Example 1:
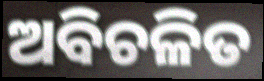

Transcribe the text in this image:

ଅବିଚଳିତ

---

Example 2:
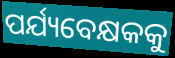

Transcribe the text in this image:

ପର୍ଯ୍ୟବେକ୍ଷକକୁ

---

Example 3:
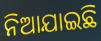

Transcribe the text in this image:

ନିଆଯାଇଛି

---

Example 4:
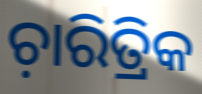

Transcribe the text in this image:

ଚ଼ାରିତ୍ରିକ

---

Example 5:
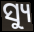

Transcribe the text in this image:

ସ୍ୟୁ